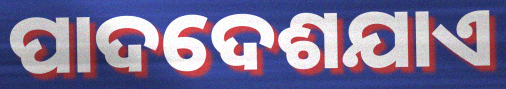
ପାଦଦେଶଯାଏ